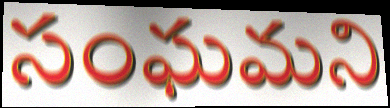
సంఘమని